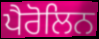
ਪੈਰੋਲਿਨ